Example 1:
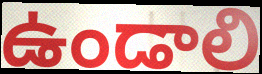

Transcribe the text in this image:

ఉండాలి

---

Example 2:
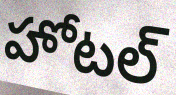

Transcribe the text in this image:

హోటల్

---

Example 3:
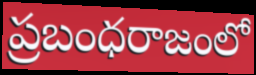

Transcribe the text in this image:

ప్రబంధరాజంలో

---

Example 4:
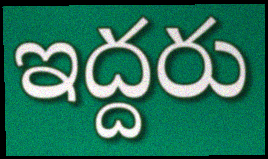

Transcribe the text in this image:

ఇద్దరు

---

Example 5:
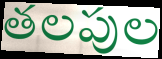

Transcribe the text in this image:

తలపుల